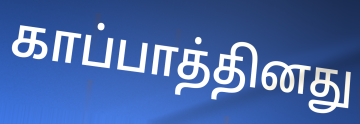
காப்பாத்தினது